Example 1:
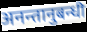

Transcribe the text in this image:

अनन्तानुबन्धी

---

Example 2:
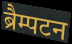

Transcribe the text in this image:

ब्रैम्पटन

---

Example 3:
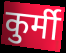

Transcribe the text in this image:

कुर्मी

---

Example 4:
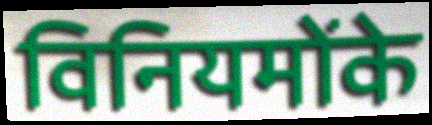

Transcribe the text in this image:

विनियमोंके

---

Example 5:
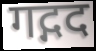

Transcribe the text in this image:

गद्गद